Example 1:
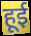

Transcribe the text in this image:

हूई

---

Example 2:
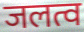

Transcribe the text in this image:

जलत्व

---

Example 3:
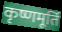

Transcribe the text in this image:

कृष्णमूर्ति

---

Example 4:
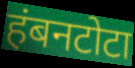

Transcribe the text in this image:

हंबनटोटा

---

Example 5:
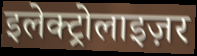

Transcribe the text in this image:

इलेक्ट्रोलाइज़र